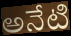
అనేటి